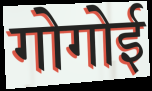
गोगोई